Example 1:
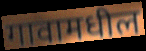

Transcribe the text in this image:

गावामधील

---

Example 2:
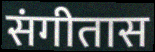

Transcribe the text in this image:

संगीतास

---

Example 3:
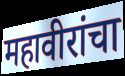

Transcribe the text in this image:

महावीरांचा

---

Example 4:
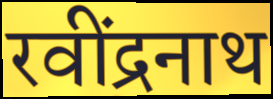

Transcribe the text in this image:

रवींद्रनाथ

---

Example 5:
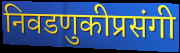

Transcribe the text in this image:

निवडणुकीप्रसंगी